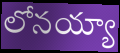
లోనయ్యా